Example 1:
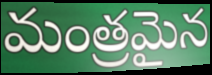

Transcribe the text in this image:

మంత్రమైన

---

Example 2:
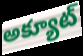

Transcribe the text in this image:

అక్యూట్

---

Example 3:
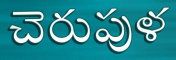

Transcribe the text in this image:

చెరుపుళ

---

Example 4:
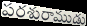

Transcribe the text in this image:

పరశురాముడు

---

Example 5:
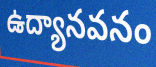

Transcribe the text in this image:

ఉద్యానవనం